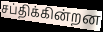
சப்திக்கின்றன